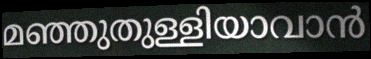
മഞ്ഞുതുള്ളിയാവാൻ